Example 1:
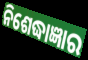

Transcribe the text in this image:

ନିଶେଦ୍ଧାଜ୍ଞାର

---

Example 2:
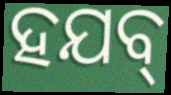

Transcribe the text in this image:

ହଯବ୍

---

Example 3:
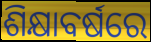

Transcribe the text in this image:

ଶିକ୍ଷାବର୍ଷରେ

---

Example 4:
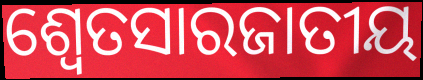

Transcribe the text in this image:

ଶ୍ଵେତସାରଜାତୀୟ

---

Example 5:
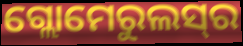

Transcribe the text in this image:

ଗ୍ଲୋମେରୁଲସ୍‌ର